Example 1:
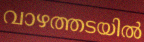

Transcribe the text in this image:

വാഴത്തടയിൽ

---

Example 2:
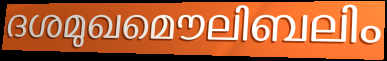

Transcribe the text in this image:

ദശമുഖമൌലിബലിം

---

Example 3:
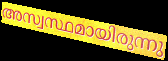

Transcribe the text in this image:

അസ്വസ്ഥമായിരുന്നു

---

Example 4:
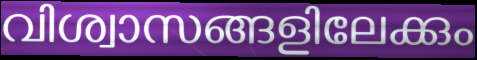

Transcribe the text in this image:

വിശ്വാസങ്ങളിലേക്കും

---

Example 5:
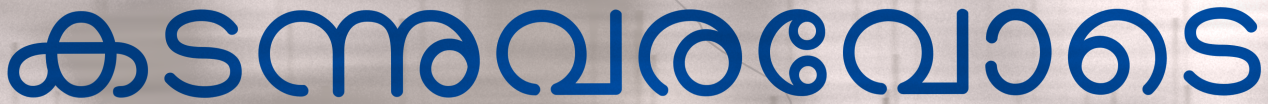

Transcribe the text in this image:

കടന്നുവരവോടെ